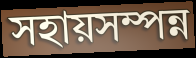
সহায়সম্পন্ন